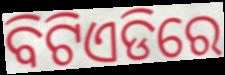
ବିଟିଏଡିରେ